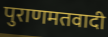
पुराणमतवादी